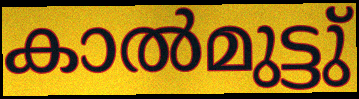
കാൽമുട്ടു്